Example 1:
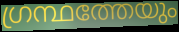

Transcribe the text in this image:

ഗ്രന്ഥത്തേയും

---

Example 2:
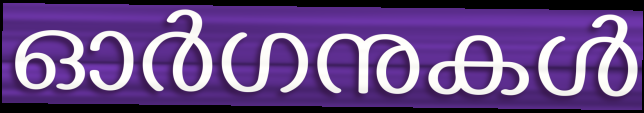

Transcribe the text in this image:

ഓർഗനുകൾ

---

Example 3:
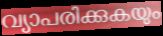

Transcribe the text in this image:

വ്യാപരിക്കുകയും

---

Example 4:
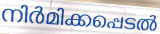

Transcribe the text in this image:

നിർമിക്കപ്പെടൽ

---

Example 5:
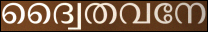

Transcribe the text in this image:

ദ്വൈതവനേ